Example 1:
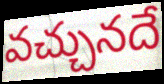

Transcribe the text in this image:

వచ్చునదే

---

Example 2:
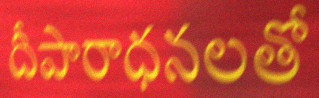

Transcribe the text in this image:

దీపారాధనలతో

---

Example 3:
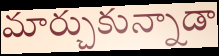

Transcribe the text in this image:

మార్చుకున్నాడా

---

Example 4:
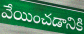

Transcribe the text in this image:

వేయించడానికి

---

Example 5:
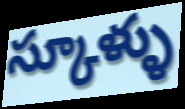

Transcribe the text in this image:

స్కూళ్ళు